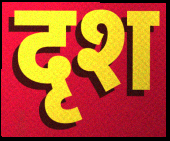
दृश